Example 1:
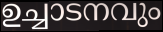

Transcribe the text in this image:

ഉച്ചാടനവും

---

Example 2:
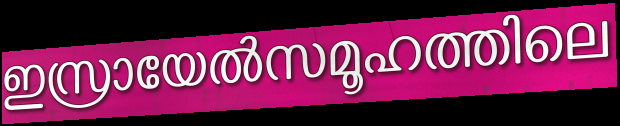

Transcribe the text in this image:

ഇസ്രായേൽസമൂഹത്തിലെ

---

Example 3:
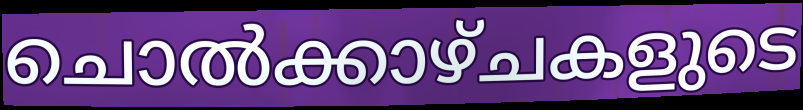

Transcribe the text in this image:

ചൊൽക്കാഴ്ചകളുടെ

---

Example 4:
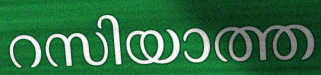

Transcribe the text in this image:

റസിയാത്ത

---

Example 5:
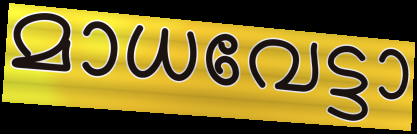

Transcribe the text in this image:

മാധവേട്ടാ